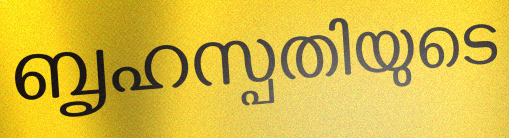
ബൃഹസ്പതിയുടെ